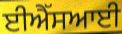
ਈਐੱਸਆਈ